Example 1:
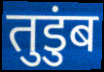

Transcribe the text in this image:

तुडुंब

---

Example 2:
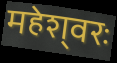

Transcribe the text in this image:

महेश्वरः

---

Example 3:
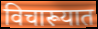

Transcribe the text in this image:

विचारूयात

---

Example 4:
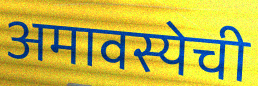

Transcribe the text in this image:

अमावस्येची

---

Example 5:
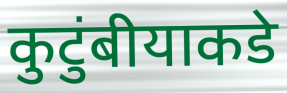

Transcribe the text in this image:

कुटुंबीयाकडे